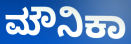
ಮೌನಿಕಾ